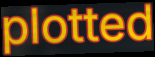
plotted